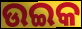
ଉଇକ